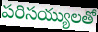
పరిసయ్యులతో